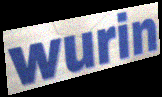
wurin